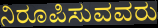
ನಿರೂಪಿಸುವವರು